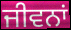
ਜੀਵਨਾਂ